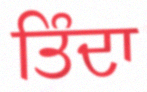
ਤਿੰਦਾ